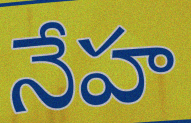
నేహ